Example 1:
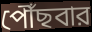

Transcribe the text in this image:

পৌঁছবার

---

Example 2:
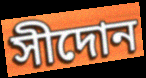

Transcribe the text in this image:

সীদোন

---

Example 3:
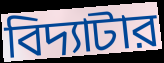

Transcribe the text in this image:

বিদ্যাটার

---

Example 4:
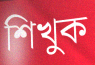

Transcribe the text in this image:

শিখুক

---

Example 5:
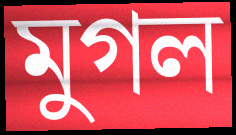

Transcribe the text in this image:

মুগল